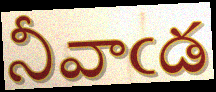
నీవాఁడ